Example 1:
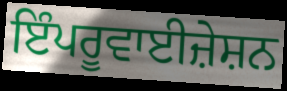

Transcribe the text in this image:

ਇੰਪਰੂਵਾਈਜ਼ੇਸ਼ਨ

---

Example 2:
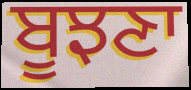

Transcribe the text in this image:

ਬੂਝਣਾ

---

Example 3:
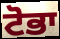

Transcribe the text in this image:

ਟੋਭਾ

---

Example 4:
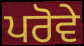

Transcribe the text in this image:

ਪਰੋਵੇ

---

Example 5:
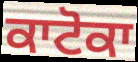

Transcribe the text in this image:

ਕਾਟੋਕਾ